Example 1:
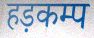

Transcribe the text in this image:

हड़कम्प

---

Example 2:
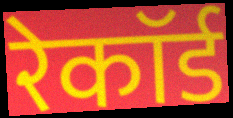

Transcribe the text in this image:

रेकॉर्ड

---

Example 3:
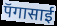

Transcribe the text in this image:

पॅगासाई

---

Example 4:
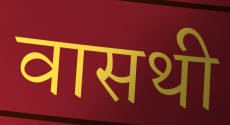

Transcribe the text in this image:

वासथी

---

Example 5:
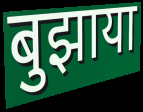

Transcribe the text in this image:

बुझाया